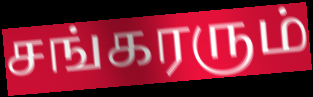
சங்கரரும்